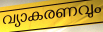
വ്യാകരണവും